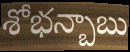
శోభన్బాబు